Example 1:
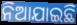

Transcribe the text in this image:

ନିଆଯାଇଛି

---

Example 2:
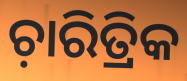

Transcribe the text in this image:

ଚ଼ାରିତ୍ରିକ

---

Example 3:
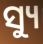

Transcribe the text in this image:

ସ୍ୟୁ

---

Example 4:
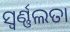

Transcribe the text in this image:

ସ୍ଵର୍ଣ୍ଣଲତା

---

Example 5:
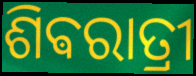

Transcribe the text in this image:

ଶିଵରାତ୍ରୀ